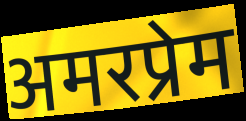
अमरप्रेम